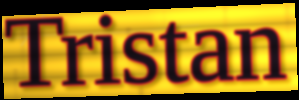
Tristan